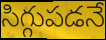
సిగ్గుపడనే